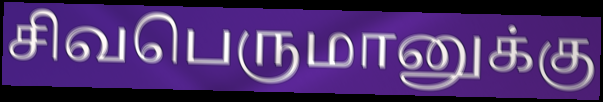
சிவபெருமானுக்கு